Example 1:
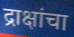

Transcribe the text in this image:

द्राक्षांचा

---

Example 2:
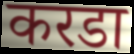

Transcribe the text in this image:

करडा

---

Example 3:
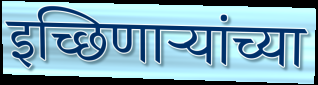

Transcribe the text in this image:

इच्छिणार्‍यांच्या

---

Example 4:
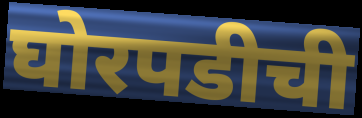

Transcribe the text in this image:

घोरपडीची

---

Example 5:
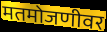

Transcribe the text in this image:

मतमोजणीवर